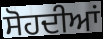
ਸੋਹਦੀਆਂ